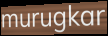
murugkar